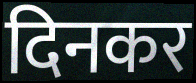
दिनकर